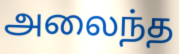
அலைந்த